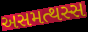
અસમત્થસ્સ